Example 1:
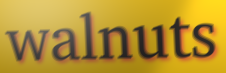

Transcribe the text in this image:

walnuts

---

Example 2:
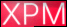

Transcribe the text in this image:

XPM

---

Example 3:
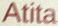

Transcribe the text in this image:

Atita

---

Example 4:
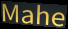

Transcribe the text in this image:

Mahe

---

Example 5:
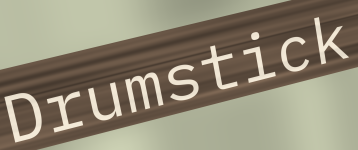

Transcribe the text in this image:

Drumstick